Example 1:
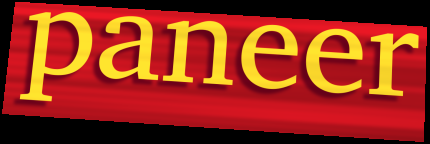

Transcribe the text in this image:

paneer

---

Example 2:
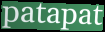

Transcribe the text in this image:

patapat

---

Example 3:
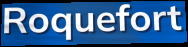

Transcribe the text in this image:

Roquefort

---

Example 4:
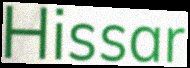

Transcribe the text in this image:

Hissar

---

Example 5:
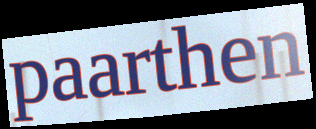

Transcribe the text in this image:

paarthen